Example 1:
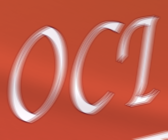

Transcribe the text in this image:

OCI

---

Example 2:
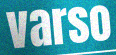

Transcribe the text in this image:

varso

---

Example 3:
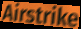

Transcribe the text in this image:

Airstrike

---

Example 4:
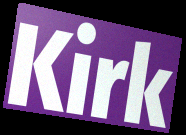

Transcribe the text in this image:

Kirk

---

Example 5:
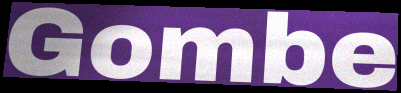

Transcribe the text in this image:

Gombe